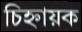
চিহ্নায়ক